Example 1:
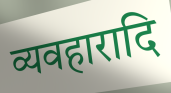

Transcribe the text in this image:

व्यवहारादि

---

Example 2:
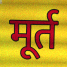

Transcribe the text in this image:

मूर्त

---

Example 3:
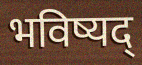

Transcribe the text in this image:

भविष्यद्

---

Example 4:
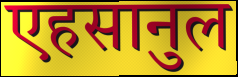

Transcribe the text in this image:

एहसानुल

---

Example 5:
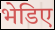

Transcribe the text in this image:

भेडिए